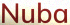
Nuba